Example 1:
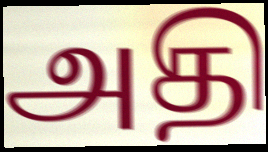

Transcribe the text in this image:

அதி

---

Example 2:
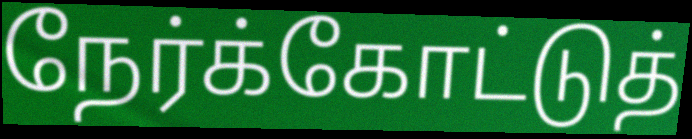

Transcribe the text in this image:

நேர்க்கோட்டுத்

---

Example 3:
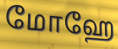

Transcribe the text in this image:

மோஹே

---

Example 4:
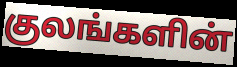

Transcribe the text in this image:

குலங்களின்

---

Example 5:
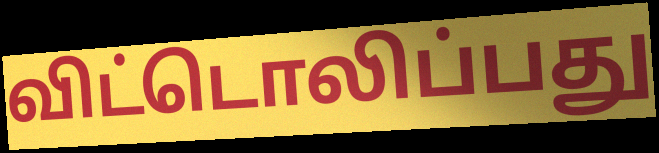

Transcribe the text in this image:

விட்டொலிப்பது